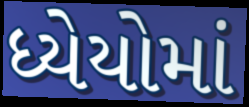
ધ્યેયોમાં